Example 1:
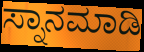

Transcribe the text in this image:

ಸ್ನಾನಮಾಡಿ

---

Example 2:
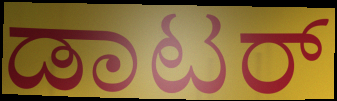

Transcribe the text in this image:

ಡಾಟರ್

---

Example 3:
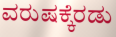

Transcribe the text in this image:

ವರುಷಕ್ಕೆರಡು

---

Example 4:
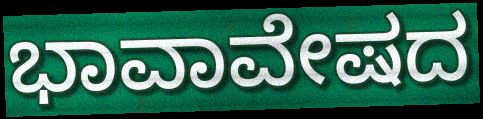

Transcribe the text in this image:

ಭಾವಾವೇಷದ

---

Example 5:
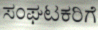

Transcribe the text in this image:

ಸಂಘಟಕರಿಗೆ